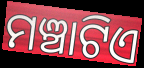
ମଞ୍ଚାଟିଏ